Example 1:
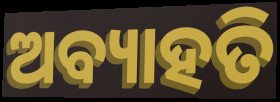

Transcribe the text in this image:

ଅବ୍ୟାହତି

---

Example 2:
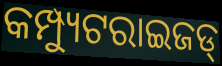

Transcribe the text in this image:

କମ୍ପ୍ୟୁଟରାଇଜଡ୍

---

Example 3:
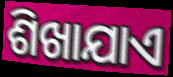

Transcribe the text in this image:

ଶିଖାଯାଏ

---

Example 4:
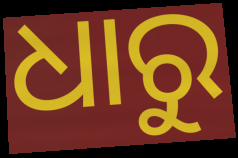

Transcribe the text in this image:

ଧାରୁ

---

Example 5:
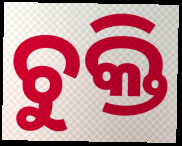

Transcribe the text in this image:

ଚୁକ୍ତି